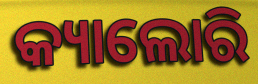
କ୍ୟାଲୋରି